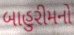
બાહુરીમનો